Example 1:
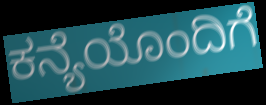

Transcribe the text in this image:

ಕನ್ಯೆಯೊಂದಿಗೆ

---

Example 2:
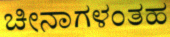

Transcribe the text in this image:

ಚೀನಾಗಳಂತಹ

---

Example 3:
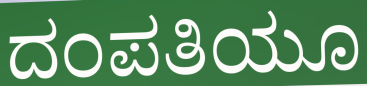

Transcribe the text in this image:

ದಂಪತಿಯೂ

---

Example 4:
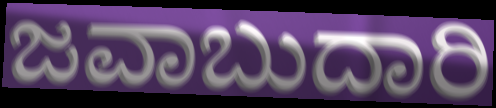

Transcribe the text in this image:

ಜವಾಬುದಾರಿ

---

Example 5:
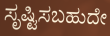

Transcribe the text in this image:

ಸೃಷ್ಟಿಸಬಹುದೇ